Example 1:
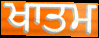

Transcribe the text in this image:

ਖਾਤਮ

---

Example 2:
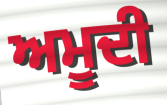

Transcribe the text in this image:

ਅਮੂਦੀ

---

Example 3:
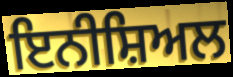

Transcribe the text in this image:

ਇਨੀਸ਼ਿਅਲ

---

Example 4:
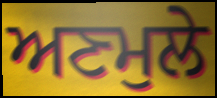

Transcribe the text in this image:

ਅਣਮੁਲੇ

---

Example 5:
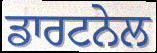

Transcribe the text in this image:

ਡਾਰਟਨੇਲ